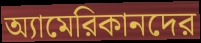
অ্যামেরিকানদের